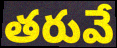
తరువే